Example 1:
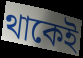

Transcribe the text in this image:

থাকেই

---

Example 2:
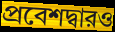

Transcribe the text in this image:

প্রবেশদ্বারও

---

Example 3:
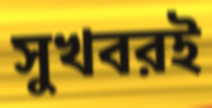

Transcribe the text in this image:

সুখবরই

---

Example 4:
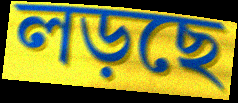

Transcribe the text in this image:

লড়ছে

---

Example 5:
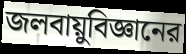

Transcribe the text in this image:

জলবায়ুবিজ্ঞানের